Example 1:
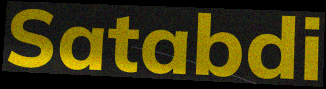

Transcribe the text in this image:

Satabdi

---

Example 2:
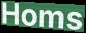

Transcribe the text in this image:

Homs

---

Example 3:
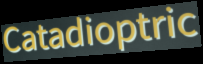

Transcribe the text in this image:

Catadioptric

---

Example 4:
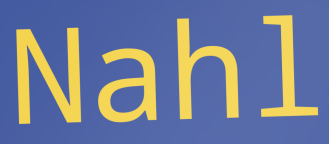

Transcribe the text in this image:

Nahl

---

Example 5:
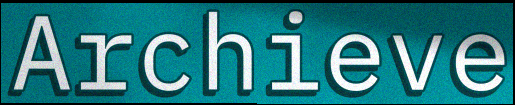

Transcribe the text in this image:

Archieve